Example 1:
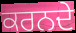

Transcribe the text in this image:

ਕਰਨਦੇ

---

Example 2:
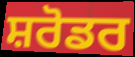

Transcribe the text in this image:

ਸ਼ਰੋਡਰ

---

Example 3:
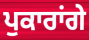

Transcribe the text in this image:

ਪੁਕਾਰਾਂਗੇ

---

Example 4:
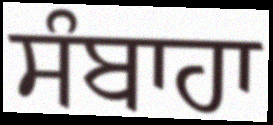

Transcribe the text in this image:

ਸੰਬਾਹਾ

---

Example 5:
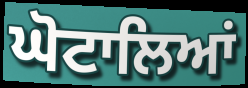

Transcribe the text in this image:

ਘੋਟਾਲਿਆਂ